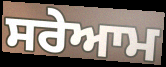
ਸਰੇਆਮ